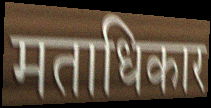
मताधिकार